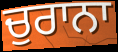
ਚੁਰਾਨਾ